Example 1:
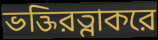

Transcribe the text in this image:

ভক্তিরত্নাকরে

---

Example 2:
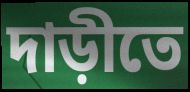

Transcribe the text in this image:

দাড়ীতে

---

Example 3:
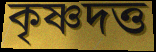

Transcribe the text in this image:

কৃষ্ণদত্ত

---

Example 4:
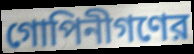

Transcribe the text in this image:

গোপিনীগণের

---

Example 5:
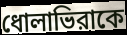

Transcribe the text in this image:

ধোলাভিরাকে